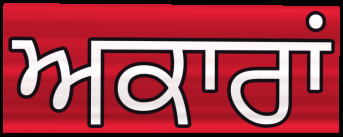
ਅਕਾਰਾਂ